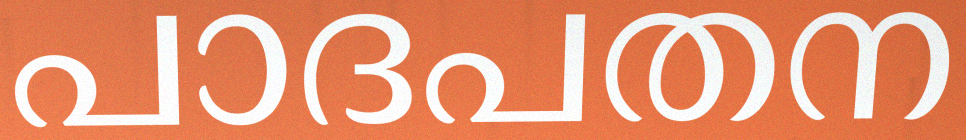
പാദപതന